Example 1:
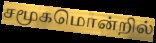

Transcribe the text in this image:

சமூகமொன்றில்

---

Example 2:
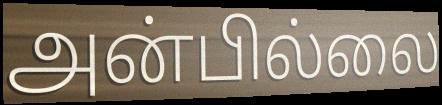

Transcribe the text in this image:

அன்பில்லை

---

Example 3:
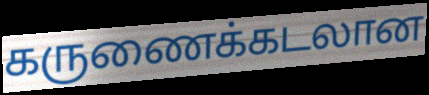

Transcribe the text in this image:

கருணைக்கடலான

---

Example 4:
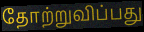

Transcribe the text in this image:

தோற்றுவிப்பது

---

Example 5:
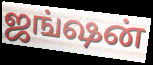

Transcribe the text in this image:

ஜங்ஷன்